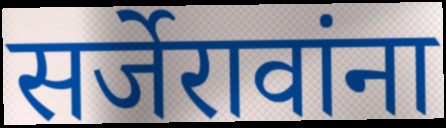
सर्जेरावांना